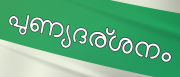
പുണ്യദര്ശനം